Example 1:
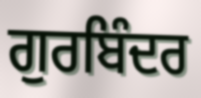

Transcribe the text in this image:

ਗੁਰਬਿੰਦਰ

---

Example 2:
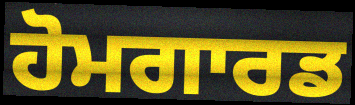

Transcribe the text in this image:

ਹੋਮਗਾਰਡ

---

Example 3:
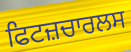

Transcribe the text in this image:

ਫਿਟਜ਼ਚਾਰਲਸ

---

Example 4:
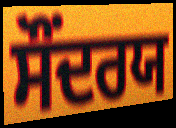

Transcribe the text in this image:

ਸੌਂਦਰਯ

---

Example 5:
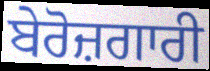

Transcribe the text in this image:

ਬੇਰੋਜ਼ਗਾਰੀ